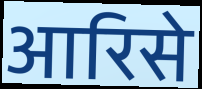
आरिसे